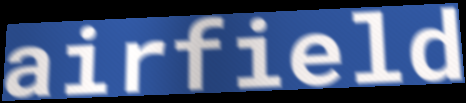
airfield